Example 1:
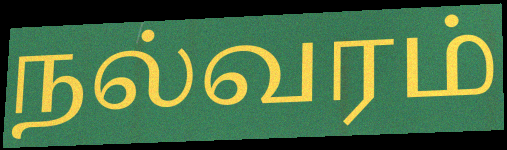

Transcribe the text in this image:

நல்வரம்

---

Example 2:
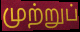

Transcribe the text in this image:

முற்றுப்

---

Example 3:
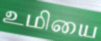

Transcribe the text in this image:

உமியை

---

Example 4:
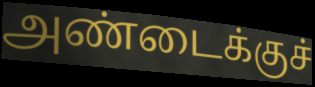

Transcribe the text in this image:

அண்டைக்குச்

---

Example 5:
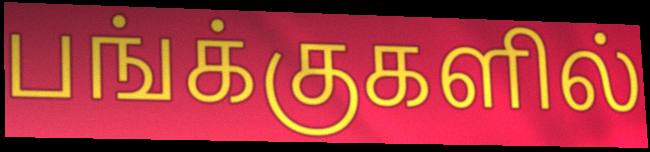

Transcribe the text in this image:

பங்க்குகளில்